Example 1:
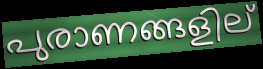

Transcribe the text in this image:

പുരാണങ്ങളില്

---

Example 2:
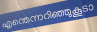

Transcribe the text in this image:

എന്തെന്നറിഞ്ഞുകൂടാ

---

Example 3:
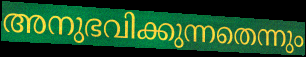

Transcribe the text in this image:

അനുഭവിക്കുന്നതെന്നും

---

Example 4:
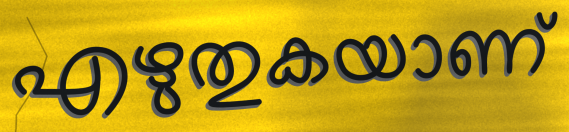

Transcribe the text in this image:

എഴുതുകയാണ്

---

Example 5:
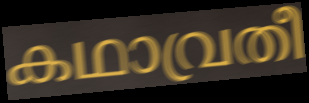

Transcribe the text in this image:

കഥാവ്രതീ